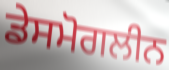
ਡੇਸਮੋਗਲੀਨ